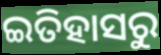
ଇତିହାସରୁ